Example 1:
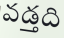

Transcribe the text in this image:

వడ్తది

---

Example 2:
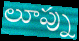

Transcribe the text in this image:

లూప్ను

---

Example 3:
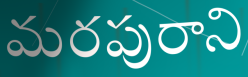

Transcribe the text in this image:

మరపురాని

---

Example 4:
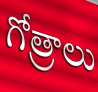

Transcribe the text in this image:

గోత్రాలు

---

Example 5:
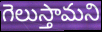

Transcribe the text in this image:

గెలుస్తామని